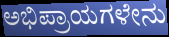
ಅಭಿಪ್ರಾಯಗಳೇನು